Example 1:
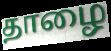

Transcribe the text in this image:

தாழை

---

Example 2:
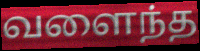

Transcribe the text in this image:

வளைந்த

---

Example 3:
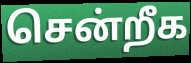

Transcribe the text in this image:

சென்றீக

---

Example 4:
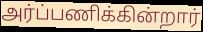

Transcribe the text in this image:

அர்ப்பணிக்கின்றார்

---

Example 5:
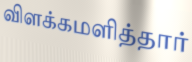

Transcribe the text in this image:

விளக்கமளித்தார்